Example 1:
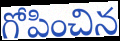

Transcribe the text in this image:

గోపించిన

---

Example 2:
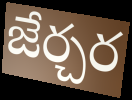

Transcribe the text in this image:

జేర్చర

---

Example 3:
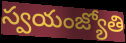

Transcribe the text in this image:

స్వయంజ్యోతి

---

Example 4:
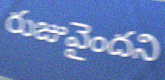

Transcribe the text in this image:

రుజువైందని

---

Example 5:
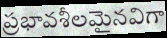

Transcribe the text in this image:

ప్రభావశీలమైనవిగా